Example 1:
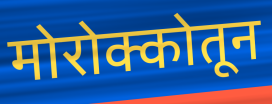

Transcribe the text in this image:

मोरोक्कोतून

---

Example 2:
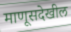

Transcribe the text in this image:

माणूसदेखील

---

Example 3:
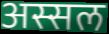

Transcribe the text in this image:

अस्सल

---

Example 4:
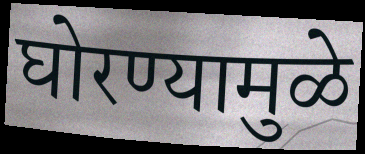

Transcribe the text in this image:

घोरण्यामुळे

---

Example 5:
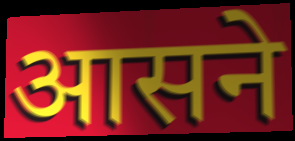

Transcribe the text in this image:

आसने